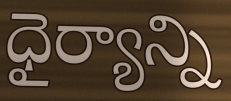
ధైర్యాన్ని